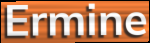
Ermine